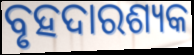
ବୃହଦାରଶ୍ୟକ